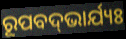
ରୂପବଦ୍‌ଭାର୍ଯ୍ୟଃ